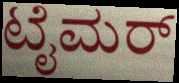
ಟೈಮರ್